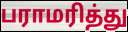
பராமரித்து